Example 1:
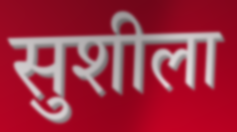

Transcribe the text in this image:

सुशीला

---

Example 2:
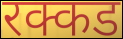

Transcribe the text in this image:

रक्कड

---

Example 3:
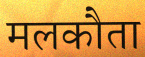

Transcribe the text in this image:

मलकौता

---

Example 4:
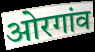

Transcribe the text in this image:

ओरगांव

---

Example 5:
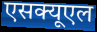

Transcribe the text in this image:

एसक्यूएल